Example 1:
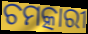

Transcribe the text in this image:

ଚମତ୍କାରୀ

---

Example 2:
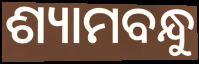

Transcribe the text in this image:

ଶ୍ୟାମବନ୍ଧୁ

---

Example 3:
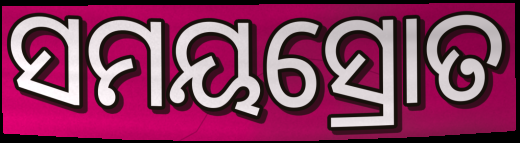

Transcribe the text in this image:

ସମୟସ୍ରୋତ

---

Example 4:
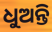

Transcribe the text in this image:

ଧୁଅନ୍ତି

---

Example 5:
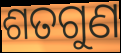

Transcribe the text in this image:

ଶତଗୁଣ